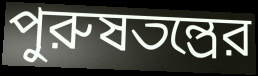
পুরুষতন্ত্রের